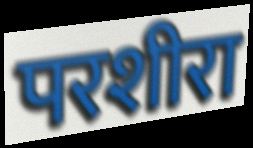
परशीरा